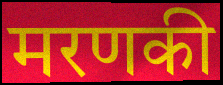
मरणकी